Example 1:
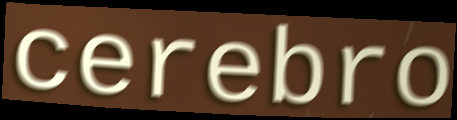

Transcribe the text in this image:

cerebro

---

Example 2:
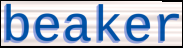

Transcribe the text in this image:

beaker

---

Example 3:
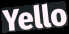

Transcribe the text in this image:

Yello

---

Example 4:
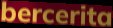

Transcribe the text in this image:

bercerita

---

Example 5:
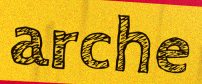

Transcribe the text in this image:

arche